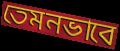
তেমনভাবে